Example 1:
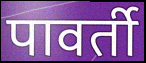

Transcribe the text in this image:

पावर्ती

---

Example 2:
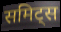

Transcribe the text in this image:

समिट्स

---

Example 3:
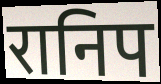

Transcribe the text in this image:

रानिप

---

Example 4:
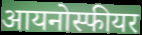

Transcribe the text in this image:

आयनोस्फीयर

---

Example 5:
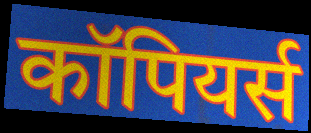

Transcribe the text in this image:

कॉपियर्स